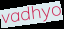
vadhyo